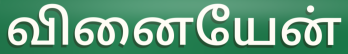
வினையேன்